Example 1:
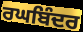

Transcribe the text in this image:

ਰਘਬਿੰਦਰ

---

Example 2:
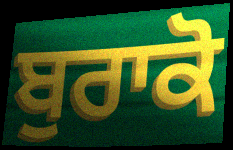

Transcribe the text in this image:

ਬੁਰਾਕੋ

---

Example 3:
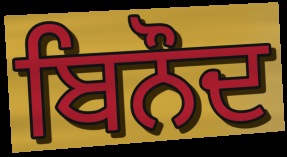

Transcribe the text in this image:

ਬਿਨੌਦ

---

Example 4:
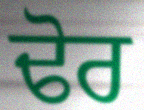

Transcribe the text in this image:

ਢੋਰ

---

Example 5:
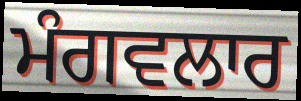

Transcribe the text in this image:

ਮੰਗਵਲਾਰ